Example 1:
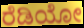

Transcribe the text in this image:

ರೆಡಿಯೋ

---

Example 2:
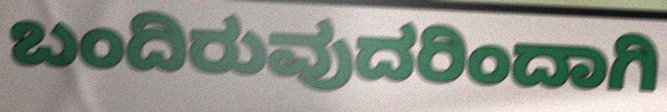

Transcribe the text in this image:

ಬಂದಿರುವುದರಿಂದಾಗಿ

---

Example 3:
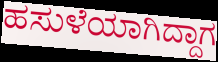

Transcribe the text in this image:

ಹಸುಳೆಯಾಗಿದ್ದಾಗ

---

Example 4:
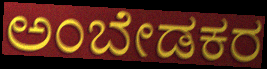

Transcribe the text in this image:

ಅಂಬೇಡಕರ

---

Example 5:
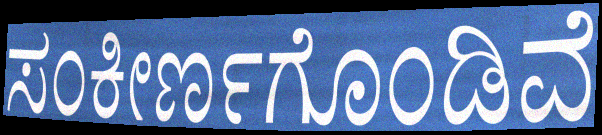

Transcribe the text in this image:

ಸಂಕೀರ್ಣಗೊಂಡಿವೆ